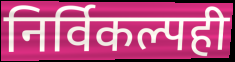
निर्विकल्पही